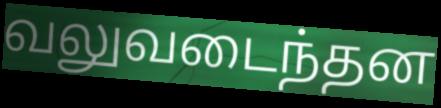
வலுவடைந்தன